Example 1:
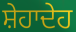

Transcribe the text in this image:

ਸ਼ੇਹਾਦੇਹ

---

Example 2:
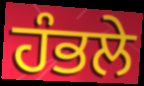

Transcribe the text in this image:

ਹੰਭਲੇ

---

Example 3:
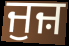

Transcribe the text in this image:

ਜੁਜ਼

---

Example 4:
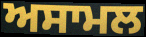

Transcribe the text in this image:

ਅਸਾਮਲ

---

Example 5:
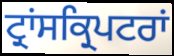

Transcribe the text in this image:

ਟ੍ਰਾਂਸਕ੍ਰਿਪਟਰਾਂ